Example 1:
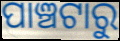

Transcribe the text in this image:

ପାଞ୍ଚଟାରୁ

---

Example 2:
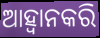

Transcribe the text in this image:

ଆହ୍ୱାନକରି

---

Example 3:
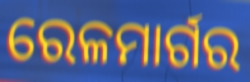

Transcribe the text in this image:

ରେଳମାର୍ଗର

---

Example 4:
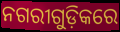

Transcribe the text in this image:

ନଗରୀଗୁଡ଼ିକରେ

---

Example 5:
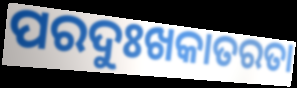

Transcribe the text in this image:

ପରଦୁଃଖକାତରତା